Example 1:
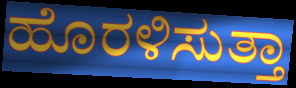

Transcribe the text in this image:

ಹೊರಳಿಸುತ್ತಾ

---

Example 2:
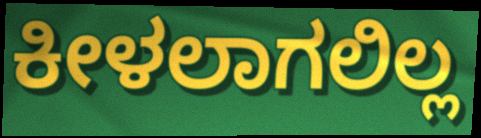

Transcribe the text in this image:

ಕೀಳಲಾಗಲಿಲ್ಲ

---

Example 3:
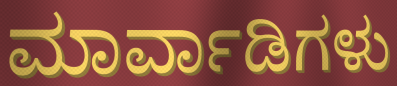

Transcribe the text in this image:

ಮಾರ್ವಾಡಿಗಳು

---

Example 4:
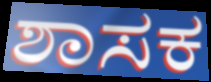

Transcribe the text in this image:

ಶಾಸಕ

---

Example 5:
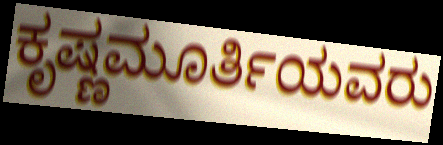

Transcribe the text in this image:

ಕೃಷ್ಣಮೂರ್ತಿಯವರು